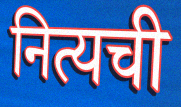
नित्यची